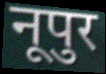
नूपुर